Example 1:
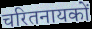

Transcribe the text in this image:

चरितनायकों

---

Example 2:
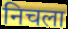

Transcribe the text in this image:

निचला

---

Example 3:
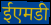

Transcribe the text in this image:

ईएमडी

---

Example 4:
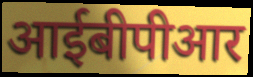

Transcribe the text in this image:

आईबीपीआर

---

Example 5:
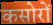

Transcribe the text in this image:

कसोरों